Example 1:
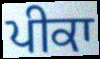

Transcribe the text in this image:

ਪੀਕਾ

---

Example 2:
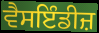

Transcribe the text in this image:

ਵੈਸਇੰਡੀਜ਼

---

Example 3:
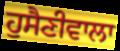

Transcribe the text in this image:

ਹੁਸੈਣੀਵਾਲਾ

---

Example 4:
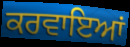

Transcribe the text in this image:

ਕਰਵਾਇਆਂ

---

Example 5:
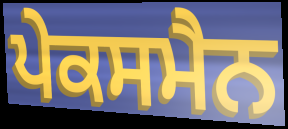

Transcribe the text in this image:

ਪੇਕਸਮੈਨ